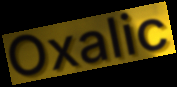
Oxalic